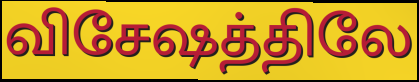
விசேஷத்திலே